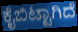
ಕೈಬಿಟ್ಟಾಗಿದೆ